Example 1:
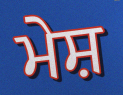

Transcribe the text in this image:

ਮੇਸ਼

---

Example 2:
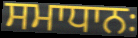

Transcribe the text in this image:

ਸਮਾਧਾਨਃ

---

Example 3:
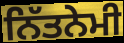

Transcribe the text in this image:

ਨਿੱਤਨੇਮੀ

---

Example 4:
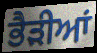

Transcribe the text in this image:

ਭੈੜੀਆਂ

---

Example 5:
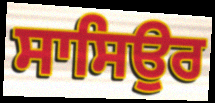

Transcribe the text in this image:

ਸਾਸਿਉਰ